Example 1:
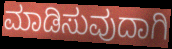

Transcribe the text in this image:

ಮಾಡಿಸುವುದಾಗಿ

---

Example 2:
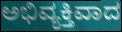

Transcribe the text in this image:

ಅಭಿವ್ಯಕ್ತಿವಾದ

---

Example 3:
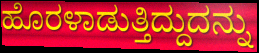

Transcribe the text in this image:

ಹೊರಳಾಡುತ್ತಿದ್ದುದನ್ನು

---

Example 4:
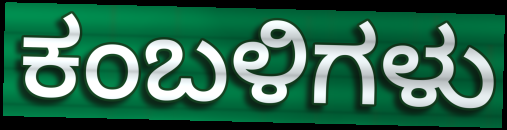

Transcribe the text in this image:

ಕಂಬಳಿಗಳು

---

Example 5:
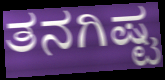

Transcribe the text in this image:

ತನಗಿಷ್ಟ